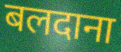
बलदाना